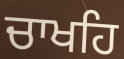
ਚਾਖਹਿ